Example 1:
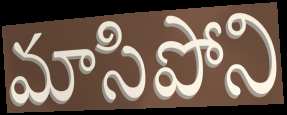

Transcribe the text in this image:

మాసిపోని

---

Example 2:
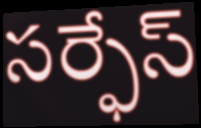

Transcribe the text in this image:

సర్ఫేస్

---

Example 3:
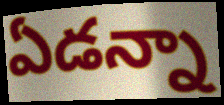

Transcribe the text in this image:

ఏడన్నా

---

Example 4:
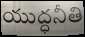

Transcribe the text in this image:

యుద్ధనీతి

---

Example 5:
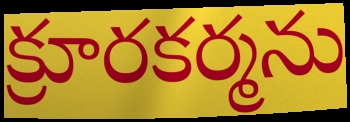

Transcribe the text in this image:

క్రూరకర్మను